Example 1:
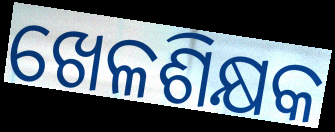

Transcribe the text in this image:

ଖେଳଶିକ୍ଷକ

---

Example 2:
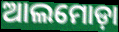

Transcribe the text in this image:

ଆଲମୋଡ଼ା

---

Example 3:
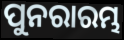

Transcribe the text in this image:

ପୁନରାରମ୍ଭ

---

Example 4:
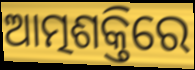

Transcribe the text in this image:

ଆତ୍ମଶକ୍ତିରେ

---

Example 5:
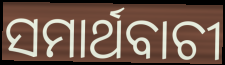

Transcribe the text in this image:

ସମାର୍ଥବାଚୀ